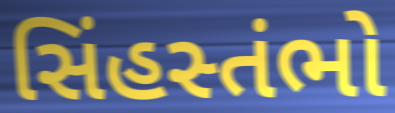
સિંહસ્તંભો